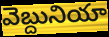
వెబ్దునియా